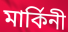
মার্কিনী